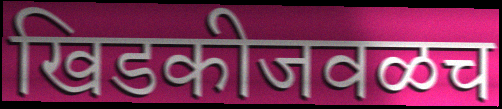
खिडकीजवळच